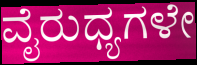
ವೈರುಧ್ಯಗಳೇ